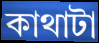
কাথাটা